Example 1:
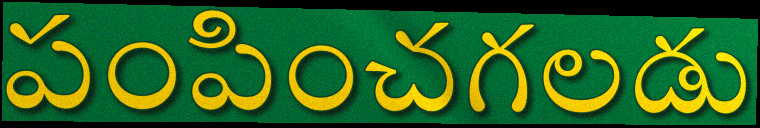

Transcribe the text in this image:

పంపించగలడు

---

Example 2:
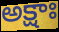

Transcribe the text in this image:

అక్షాః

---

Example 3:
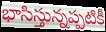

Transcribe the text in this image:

భాసిస్తున్నప్పటికీ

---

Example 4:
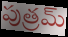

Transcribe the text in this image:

పుత్రమ్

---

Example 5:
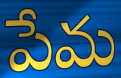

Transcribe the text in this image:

పేమ